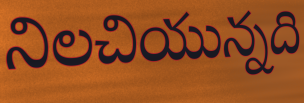
నిలచియున్నది